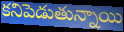
కనిపెడుతున్నాయి